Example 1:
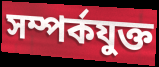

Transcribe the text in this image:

সম্পৰ্কযুক্ত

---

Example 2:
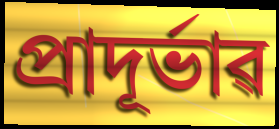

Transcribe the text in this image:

প্ৰাদূৰ্ভাৱ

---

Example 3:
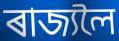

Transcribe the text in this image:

ৰাজ্যলৈ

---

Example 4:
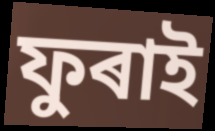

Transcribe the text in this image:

ফুৰাই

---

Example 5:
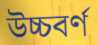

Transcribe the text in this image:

উচ্চবৰ্ণ